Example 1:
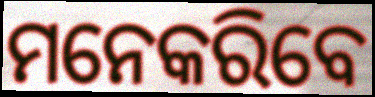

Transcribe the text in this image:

ମନେକରିବେ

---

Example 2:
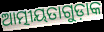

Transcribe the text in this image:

ଆତ୍ମୀୟତାଗୁଡ଼ାକ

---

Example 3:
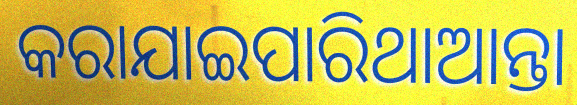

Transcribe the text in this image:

କରାଯାଇପାରିଥାଆନ୍ତା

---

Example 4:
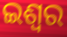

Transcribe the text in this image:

ଇଶ୍ଵର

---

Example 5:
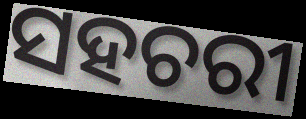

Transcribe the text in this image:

ସହଚରୀ